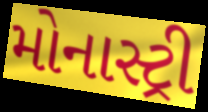
મોનાસ્ટ્રી